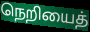
நெறியைத்